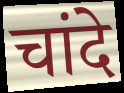
चांदे